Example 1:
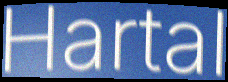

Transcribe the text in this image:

Hartal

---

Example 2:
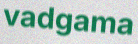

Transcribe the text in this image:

vadgama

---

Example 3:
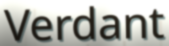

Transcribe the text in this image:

Verdant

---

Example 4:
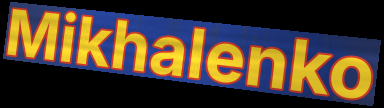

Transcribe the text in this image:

Mikhalenko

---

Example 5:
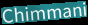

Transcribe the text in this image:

Chimmani